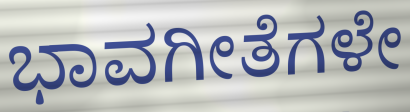
ಭಾವಗೀತೆಗಳೇ